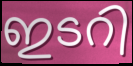
ഇടറി